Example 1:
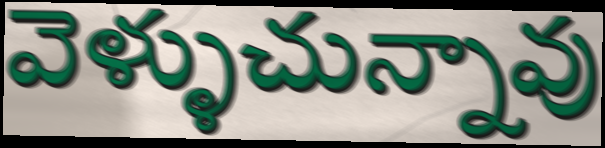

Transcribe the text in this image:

వెళ్ళుచున్నావు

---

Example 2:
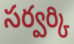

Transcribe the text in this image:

సర్వర్కి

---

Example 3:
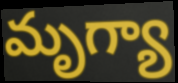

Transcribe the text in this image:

మృగ్యా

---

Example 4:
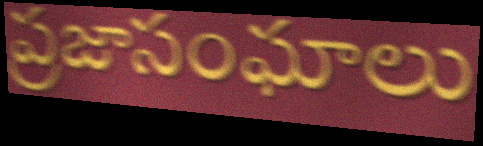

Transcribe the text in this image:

ప్రజాసంఘాలు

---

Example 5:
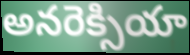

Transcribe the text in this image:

అనరెక్సియా